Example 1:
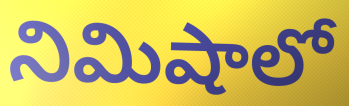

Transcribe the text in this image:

నిమిషాలో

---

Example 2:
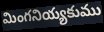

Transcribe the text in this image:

మింగనియ్యకుము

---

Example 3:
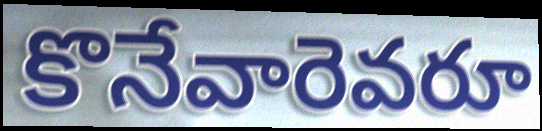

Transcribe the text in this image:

కొనేవారెవరూ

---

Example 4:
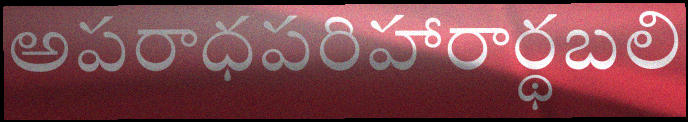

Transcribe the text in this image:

అపరాధపరిహారార్థబలి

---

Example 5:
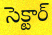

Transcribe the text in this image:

సెక్టార్